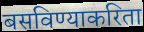
बसविण्याकरिता